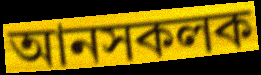
আনসকলক